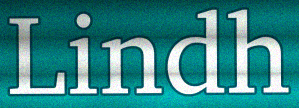
Lindh